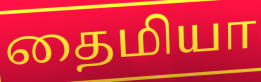
தைமியா